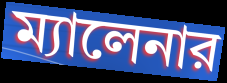
ম্যালেনার